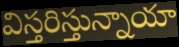
విస్తరిస్తున్నాయా